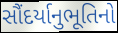
સૌંદર્યાનુભૂતિનો